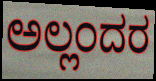
ಅಲ್ಲಂದರ